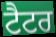
ਟੈਟਰ